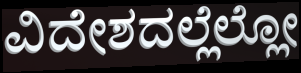
ವಿದೇಶದಲ್ಲೆಲ್ಲೋ